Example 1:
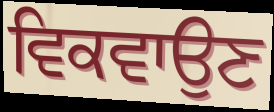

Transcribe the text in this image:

ਵਿਕਵਾਉਣ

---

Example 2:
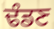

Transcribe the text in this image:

ਢੰਡਣ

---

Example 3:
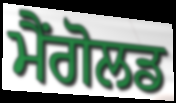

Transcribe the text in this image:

ਮੈਂਗੋਲਡ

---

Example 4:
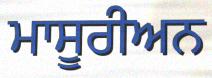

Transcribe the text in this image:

ਮਾਸੂਰੀਅਨ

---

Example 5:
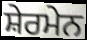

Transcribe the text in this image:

ਸ਼ੇਰਮੇਨ